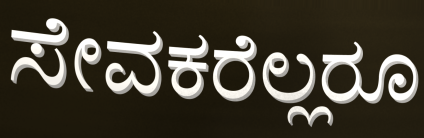
ಸೇವಕರೆಲ್ಲರೂ